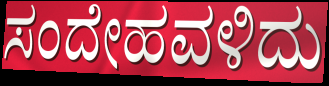
ಸಂದೇಹವಳಿದು